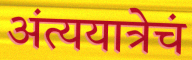
अंत्ययात्रेचं